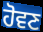
ਹੋਵਣ